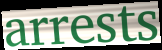
arrests